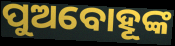
ପୁଅବୋହୂଙ୍କ